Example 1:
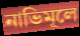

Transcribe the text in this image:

নাভিমূলে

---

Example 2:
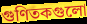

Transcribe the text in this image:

গুণিতকগুলো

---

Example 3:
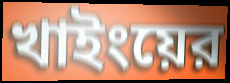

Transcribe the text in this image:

খাইংয়ের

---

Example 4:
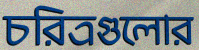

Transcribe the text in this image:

চরিত্রগুলোর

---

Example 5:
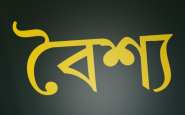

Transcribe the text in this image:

বৈশ্য